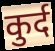
कुर्द